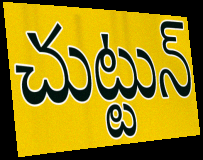
చుట్టున్